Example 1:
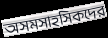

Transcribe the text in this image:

অসমসাহসিকদের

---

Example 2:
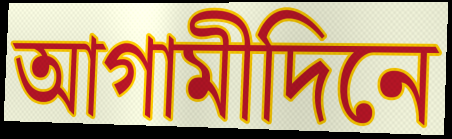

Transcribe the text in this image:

আগামীদিনে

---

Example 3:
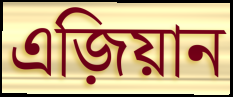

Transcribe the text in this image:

এজ়িয়ান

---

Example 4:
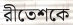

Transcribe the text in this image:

রীতেশকে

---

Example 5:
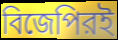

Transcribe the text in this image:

বিজেপিরই